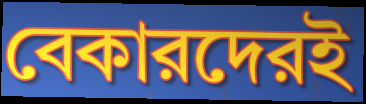
বেকারদেরই